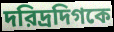
দরিদ্রদিগকে